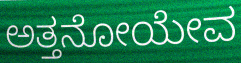
ಅತ್ತನೋಯೇವ